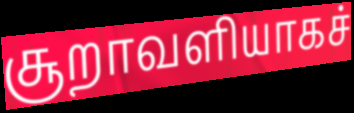
சூறாவளியாகச்